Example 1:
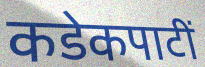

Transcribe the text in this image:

कडेकपाटीं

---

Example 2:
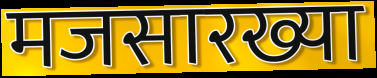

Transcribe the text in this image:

मजसारख्या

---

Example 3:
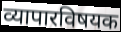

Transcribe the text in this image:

व्यापारविषयक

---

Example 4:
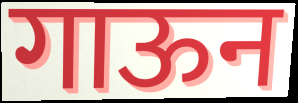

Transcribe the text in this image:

गाऊन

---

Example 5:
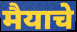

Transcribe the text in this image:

मैयाचे